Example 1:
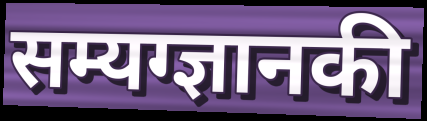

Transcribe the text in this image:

सम्यग्ज्ञानकी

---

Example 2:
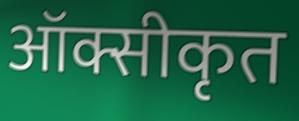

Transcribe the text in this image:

ऑक्सीकृत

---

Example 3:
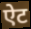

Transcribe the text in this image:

ऐट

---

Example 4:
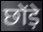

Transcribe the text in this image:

छोंड़े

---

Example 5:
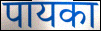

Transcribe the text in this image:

पायका